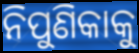
ନିପୁଣିକାକୁ